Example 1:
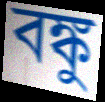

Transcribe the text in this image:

বঙ্কু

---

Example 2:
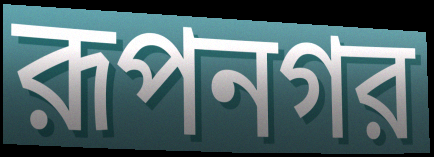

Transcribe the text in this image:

রূপনগর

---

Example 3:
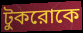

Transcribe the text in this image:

টুকরোকে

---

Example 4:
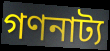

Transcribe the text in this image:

গণনাট্য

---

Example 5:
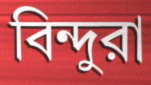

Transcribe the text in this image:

বিন্দুরা